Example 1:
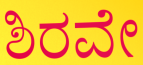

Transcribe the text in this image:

ಶಿರವೇ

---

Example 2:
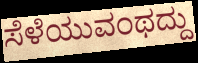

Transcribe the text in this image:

ಸೆಳೆಯುವಂಥದ್ದು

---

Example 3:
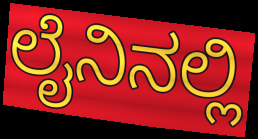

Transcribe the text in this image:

ಲೈನಿನಲ್ಲಿ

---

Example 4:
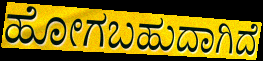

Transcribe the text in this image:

ಹೋಗಬಹುದಾಗಿದೆ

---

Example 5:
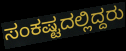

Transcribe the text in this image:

ಸಂಕಷ್ಟದಲ್ಲಿದ್ದರು